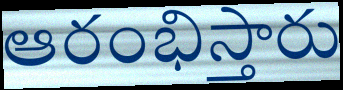
ఆరంభిస్తారు